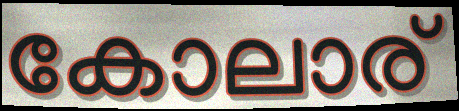
കോലാര്